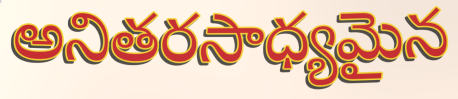
అనితరసాధ్యమైన